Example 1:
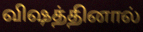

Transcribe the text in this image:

விஷத்தினால்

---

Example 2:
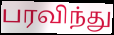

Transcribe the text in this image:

பரவிந்து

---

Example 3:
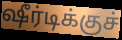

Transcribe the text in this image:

ஷீர்டிக்குச்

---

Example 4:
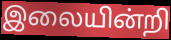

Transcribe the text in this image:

இலையின்றி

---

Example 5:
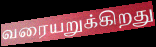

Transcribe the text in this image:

வரையறுக்கிறது